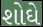
શોઘે